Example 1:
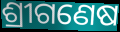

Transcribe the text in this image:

ଶ୍ରୀଗଣେଷ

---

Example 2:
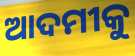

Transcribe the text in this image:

ଆଦମୀକୁ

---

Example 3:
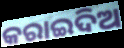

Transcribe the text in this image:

କରାଇଦିଅ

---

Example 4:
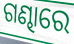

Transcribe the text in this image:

ଗଣ୍ଢାରେ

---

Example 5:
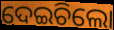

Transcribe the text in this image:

ଦେଇଚିଲୋ